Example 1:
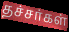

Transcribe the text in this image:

தச்சர்கள்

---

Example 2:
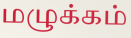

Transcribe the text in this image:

மழுக்கம்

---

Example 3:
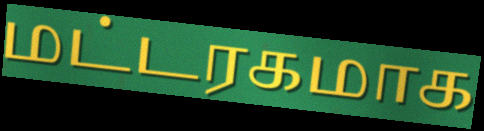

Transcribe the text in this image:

மட்டரகமாக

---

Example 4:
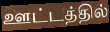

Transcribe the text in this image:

ஊட்டத்தில்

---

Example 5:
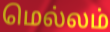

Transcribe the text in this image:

மெல்லம்